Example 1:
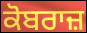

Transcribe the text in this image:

ਕੋਬਰਾਜ਼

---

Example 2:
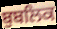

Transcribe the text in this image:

ਬੁਬਲਿਕ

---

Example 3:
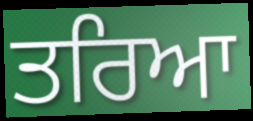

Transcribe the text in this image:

ਤਰਿਆ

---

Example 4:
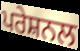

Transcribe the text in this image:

ਪਰੇਸ਼ਨਲ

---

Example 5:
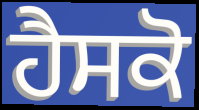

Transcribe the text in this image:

ਹੈਸਕੋ